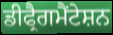
ਡੀਫ੍ਰੈਗਮੈਂਟੇਸ਼ਨ